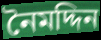
নৈমদ্দিন